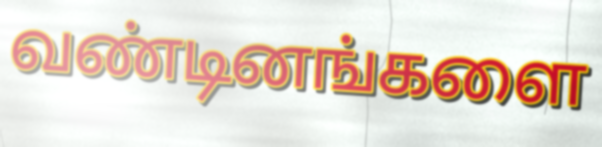
வண்டினங்களை